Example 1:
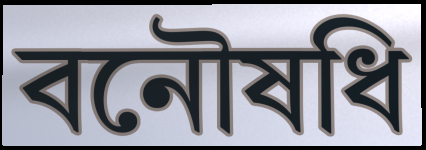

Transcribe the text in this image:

বনৌষধি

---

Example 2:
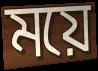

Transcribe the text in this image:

ময়ে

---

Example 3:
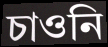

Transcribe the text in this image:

চাওনি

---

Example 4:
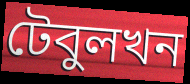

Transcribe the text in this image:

টেবুলখন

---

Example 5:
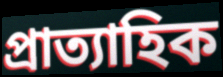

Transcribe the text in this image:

প্ৰাত্যাহিক